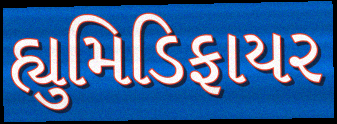
હ્યુમિડિફાયર